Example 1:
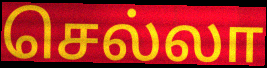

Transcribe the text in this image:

செல்லா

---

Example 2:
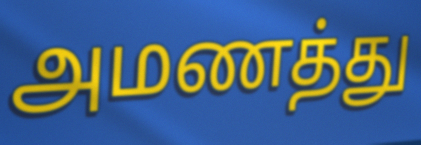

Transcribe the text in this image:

அமணத்து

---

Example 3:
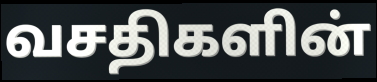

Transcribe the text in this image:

வசதிகளின்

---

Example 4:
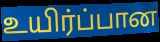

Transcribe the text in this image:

உயிர்ப்பான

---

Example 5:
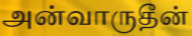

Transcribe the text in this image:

அன்வாருதீன்